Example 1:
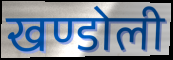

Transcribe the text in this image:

खण्डोली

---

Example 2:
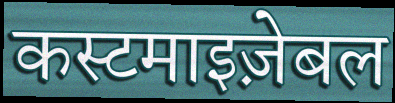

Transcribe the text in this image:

कस्टमाइज़ेबल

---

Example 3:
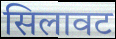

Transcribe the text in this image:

सिलावट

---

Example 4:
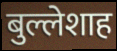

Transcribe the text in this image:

बुल्लेशाह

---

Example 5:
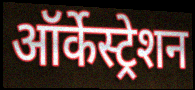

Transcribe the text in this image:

ऑर्केस्ट्रेशन